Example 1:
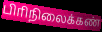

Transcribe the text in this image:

பிரிநிலைக்கண்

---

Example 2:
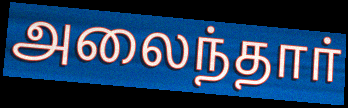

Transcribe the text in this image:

அலைந்தார்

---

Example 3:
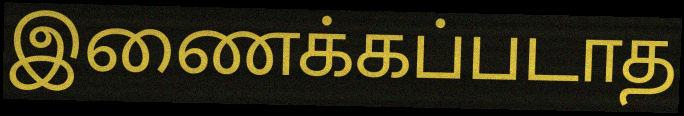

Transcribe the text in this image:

இணைக்கப்படாத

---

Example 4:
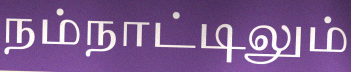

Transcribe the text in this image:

நம்நாட்டிலும்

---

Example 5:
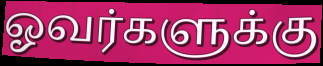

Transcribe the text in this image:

ஓவர்களுக்கு